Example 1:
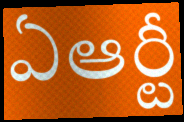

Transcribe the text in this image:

ఏఆర్టీ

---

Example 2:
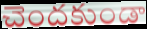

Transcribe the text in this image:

చెందకుండా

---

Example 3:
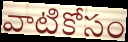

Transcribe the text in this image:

వాటికోసం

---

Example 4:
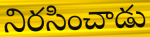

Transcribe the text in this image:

నిరసించాడు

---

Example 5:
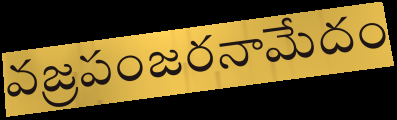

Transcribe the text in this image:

వజ్రపంజరనామేదం